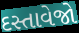
દસ્તાવેજો